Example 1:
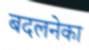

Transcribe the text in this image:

बदलनेका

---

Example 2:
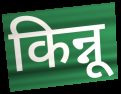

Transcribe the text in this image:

किन्नू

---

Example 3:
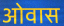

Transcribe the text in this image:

ओवास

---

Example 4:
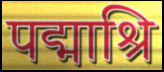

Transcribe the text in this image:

पद्माश्रि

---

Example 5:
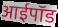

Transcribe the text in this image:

आईपॉड